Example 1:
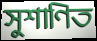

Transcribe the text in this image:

সুশাণিত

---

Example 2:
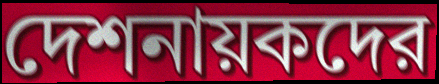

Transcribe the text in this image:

দেশনায়কদের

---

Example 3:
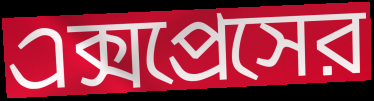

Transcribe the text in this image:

এক্সপ্রেসের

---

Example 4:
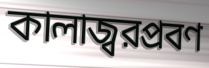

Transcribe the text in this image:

কালাজ্বরপ্রবণ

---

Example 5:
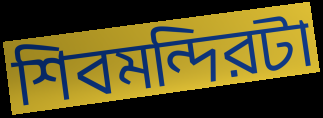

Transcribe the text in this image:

শিবমন্দিরটা